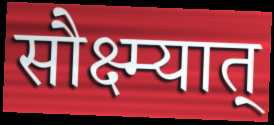
सौक्ष्म्यात्